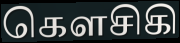
கௌசிகி